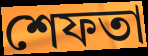
শেফতা